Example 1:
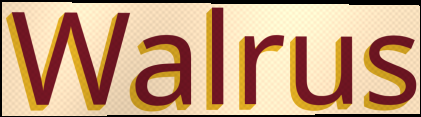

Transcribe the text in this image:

Walrus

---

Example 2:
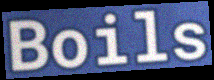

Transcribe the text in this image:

Boils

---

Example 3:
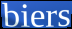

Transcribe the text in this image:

biers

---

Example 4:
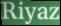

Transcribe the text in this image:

Riyaz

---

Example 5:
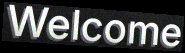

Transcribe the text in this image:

Welcome